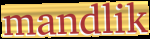
mandlik